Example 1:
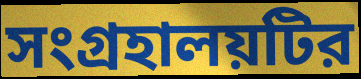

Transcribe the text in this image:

সংগ্রহালয়টির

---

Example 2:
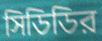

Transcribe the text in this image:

সিডিডির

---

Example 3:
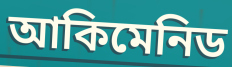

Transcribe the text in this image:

আকিমেনিড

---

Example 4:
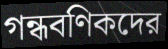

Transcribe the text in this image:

গন্ধবণিকদের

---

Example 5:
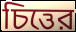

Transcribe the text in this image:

চিত্তের